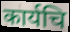
कार्यचि